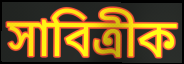
সাবিত্ৰীক